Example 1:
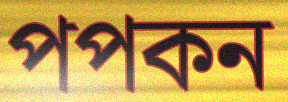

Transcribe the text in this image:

পপকন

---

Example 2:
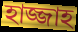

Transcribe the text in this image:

হাজ্জাহ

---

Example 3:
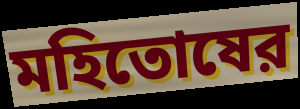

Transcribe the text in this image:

মহিতোষের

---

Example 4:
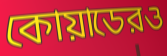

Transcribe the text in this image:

কোয়াডেরও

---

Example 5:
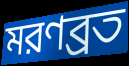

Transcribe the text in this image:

মরণব্রত